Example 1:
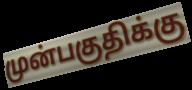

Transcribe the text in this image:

முன்பகுதிக்கு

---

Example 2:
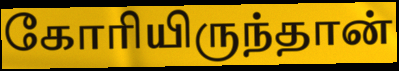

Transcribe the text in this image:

கோரியிருந்தான்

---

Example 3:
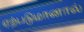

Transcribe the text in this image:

ஏற்படுமானால்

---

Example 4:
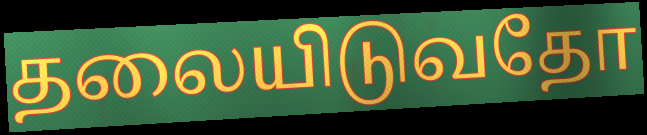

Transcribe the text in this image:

தலையிடுவதோ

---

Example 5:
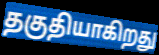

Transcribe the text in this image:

தகுதியாகிறது